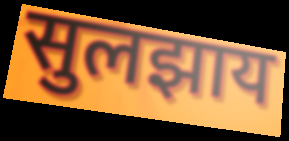
सुलझाय